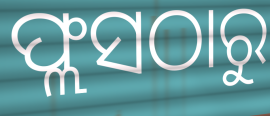
ଫ୍ଲସଠାରୁ